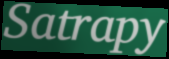
Satrapy